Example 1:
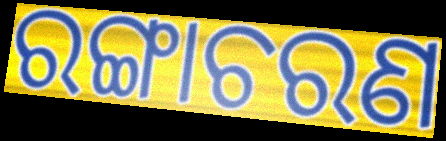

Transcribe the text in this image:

ରଙ୍ଗାଚରଣ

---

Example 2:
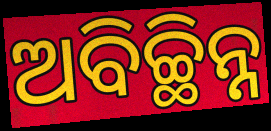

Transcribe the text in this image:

ଅବିଚ୍ଛିନ୍ନ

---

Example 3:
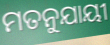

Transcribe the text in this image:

ମତନୁଯାୟୀ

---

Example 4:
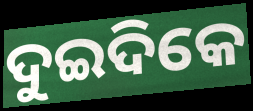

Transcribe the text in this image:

ଦୁଇଦିକେ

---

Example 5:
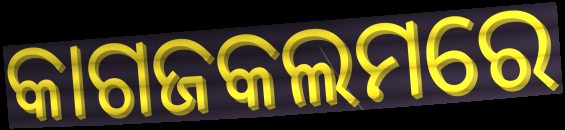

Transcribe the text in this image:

କାଗଜକଲମରେ